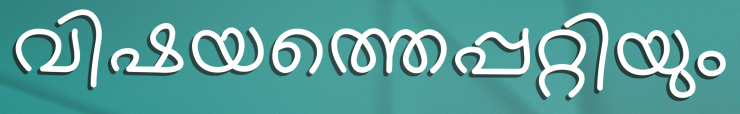
വിഷയത്തെപ്പറ്റിയും